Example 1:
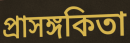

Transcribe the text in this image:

প্রাসঙ্গকিতা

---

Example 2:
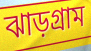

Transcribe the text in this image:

ঝাড়গ্রাম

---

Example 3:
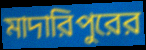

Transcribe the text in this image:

মাদারিপুরের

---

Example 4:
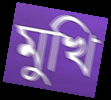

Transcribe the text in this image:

মুখি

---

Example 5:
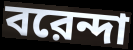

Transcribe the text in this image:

বরেন্দা